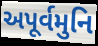
અપૂર્વમુનિ